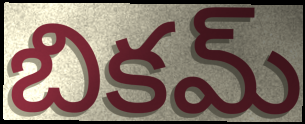
బికమ్